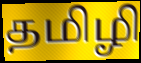
தமிழி